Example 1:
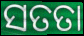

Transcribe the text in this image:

ସତତା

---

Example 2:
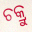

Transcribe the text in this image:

ଚକ୍ରୁ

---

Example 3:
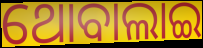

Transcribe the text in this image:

ଥୋବାଲାଇ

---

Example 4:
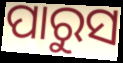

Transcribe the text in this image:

ପାରୁସ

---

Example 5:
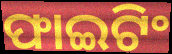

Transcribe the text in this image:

ଫାଇଟିଂ